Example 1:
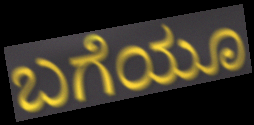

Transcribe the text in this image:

ಬಗೆಯೂ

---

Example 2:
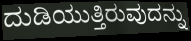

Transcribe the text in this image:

ದುಡಿಯುತ್ತಿರುವುದನ್ನು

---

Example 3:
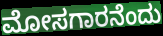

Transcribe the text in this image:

ಮೋಸಗಾರನೆಂದು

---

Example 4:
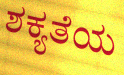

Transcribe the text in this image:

ಶಕ್ಯತೆಯ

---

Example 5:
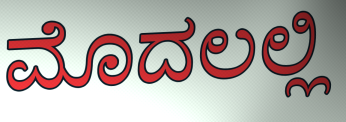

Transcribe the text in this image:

ಮೊದಲಲ್ಲಿ